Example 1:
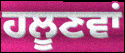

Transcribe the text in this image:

ਹਲੂਣਵਾਂ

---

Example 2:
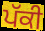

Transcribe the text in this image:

ਪੱਕੀ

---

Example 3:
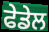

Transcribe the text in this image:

ਫੇਡੇਲ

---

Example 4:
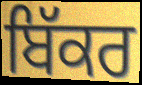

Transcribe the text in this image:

ਬਿੱਕਰ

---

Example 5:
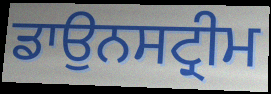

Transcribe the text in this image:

ਡਾਉਨਸਟ੍ਰੀਮ